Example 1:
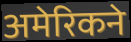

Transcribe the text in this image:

अमेरिकने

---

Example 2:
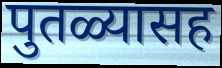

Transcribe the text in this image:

पुतळ्यासह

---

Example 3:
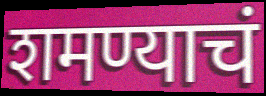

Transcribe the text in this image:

शमण्याचं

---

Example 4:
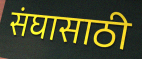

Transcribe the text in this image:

संघासाठी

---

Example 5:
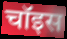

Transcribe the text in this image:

चॉइस